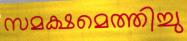
സമക്ഷമെത്തിച്ചു